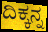
ದಿಕ್ಕನ್ನ